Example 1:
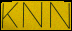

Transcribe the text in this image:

KNN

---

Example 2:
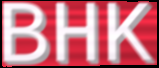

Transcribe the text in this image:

BHK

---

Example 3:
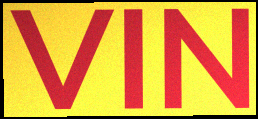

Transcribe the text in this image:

VIN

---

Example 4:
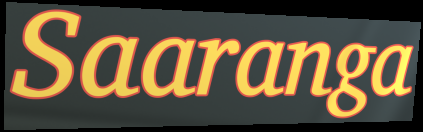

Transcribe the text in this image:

Saaranga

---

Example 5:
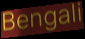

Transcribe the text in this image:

Bengali